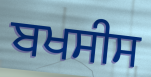
ਬਖਸੀਸ